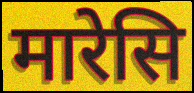
मारेसि